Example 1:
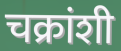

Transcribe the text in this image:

चक्रांशी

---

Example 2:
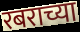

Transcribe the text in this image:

रबराच्या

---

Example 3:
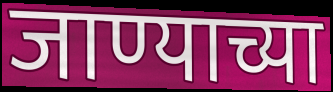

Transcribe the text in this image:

जाण्याच्या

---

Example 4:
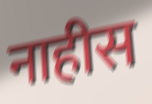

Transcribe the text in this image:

नाहीस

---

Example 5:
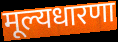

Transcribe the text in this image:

मूल्यधारणा